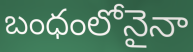
బంధంలోనైనా